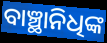
ବାଞ୍ଛାନିଧିଙ୍କ